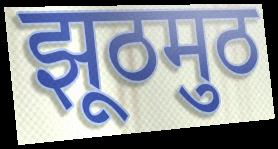
झूठमुठ